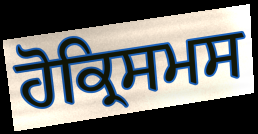
ਹੋਕ੍ਰਿਸਮਸ